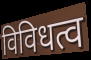
विविधत्व